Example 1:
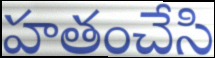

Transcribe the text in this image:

హతంచేసి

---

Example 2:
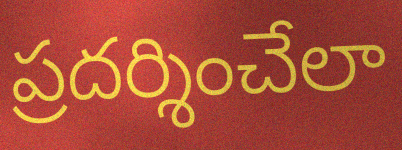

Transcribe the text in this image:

ప్రదర్శించేలా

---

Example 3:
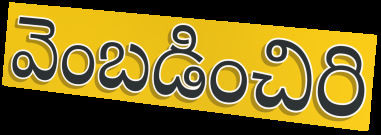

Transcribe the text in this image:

వెంబడించిరి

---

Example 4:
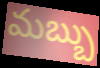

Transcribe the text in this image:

మబ్బు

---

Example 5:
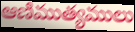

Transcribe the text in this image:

ఆణిముత్యములు